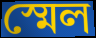
স্মেল